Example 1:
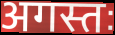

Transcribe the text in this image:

अगस्तः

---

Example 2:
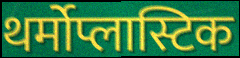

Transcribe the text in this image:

थर्मोप्लास्टिक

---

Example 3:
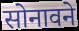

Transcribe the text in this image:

सोनावने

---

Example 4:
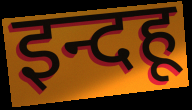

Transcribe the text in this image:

इन्दहू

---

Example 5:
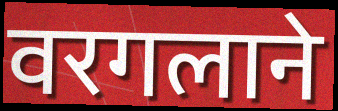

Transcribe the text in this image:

वरगलाने